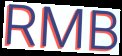
RMB